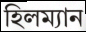
হিলম্যান